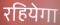
रहियेगा